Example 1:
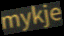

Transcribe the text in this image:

mykje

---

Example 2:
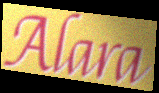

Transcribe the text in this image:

Alara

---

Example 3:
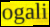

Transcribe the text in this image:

ogali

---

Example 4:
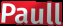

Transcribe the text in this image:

Paull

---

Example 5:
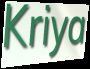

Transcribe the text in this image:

Kriya